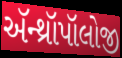
ઍન્થ્રૉપૉલોજી